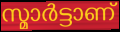
സ്മാർട്ടാണ്